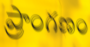
ప్రాంగణం